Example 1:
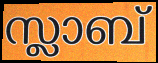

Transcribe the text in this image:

സ്ലാബ്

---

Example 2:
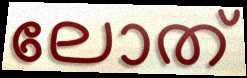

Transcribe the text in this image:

ലോത്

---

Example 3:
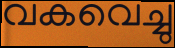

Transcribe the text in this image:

വകവെച്ചു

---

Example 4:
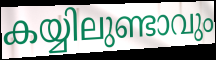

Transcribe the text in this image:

കയ്യിലുണ്ടാവും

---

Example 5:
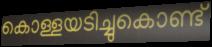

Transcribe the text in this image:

കൊള്ളയടിച്ചുകൊണ്ട്